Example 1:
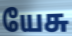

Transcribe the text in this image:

யேசு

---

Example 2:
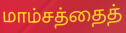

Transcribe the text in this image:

மாம்சத்தைத்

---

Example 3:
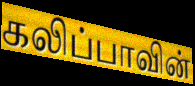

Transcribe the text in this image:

கலிப்பாவின்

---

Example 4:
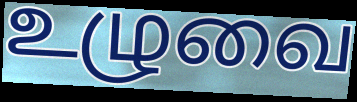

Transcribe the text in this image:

உழுவை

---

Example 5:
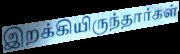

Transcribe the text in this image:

இறக்கியிருந்தார்கள்